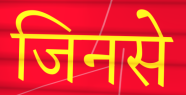
जिनसे